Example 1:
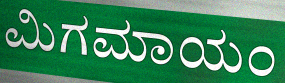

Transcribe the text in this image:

ಮಿಗಮಾಯಂ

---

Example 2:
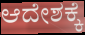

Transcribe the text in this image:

ಆದೇಶಕ್ಕೆ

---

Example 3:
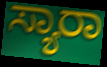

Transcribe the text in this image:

ಸ್ಯಾರಾ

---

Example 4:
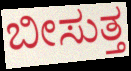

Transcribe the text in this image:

ಬೀಸುತ್ತ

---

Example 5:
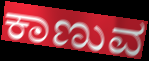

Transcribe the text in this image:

ಕಾಣುವ